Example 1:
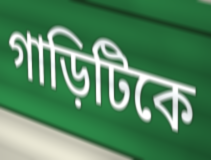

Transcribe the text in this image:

গাড়িটিকে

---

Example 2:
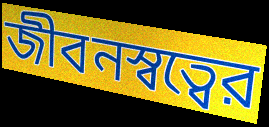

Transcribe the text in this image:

জীবনস্বত্বের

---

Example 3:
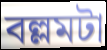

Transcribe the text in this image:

বল্লমটা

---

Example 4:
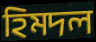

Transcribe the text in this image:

হিমদল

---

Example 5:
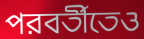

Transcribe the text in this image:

পরবর্তীতেও